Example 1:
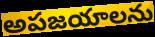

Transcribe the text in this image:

అపజయాలను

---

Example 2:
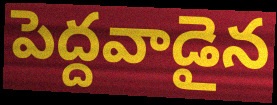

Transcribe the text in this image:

పెద్దవాడైన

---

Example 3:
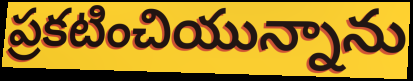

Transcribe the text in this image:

ప్రకటించియున్నాను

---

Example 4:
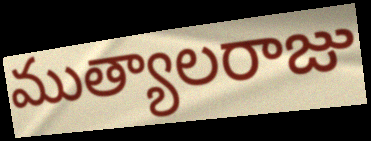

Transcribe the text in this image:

ముత్యాలరాజు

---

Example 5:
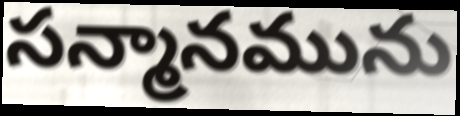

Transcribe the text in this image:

సన్మానమును